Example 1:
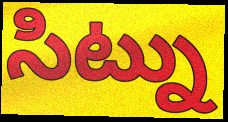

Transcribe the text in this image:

సిట్ను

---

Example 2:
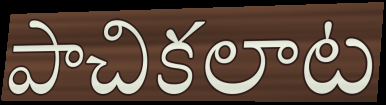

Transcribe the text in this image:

పాచికలాట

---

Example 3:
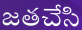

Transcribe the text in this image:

జతచేసి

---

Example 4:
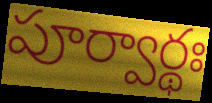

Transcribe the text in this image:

పూర్వార్థః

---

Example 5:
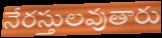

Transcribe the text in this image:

నేరస్తులవుతారు